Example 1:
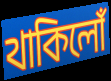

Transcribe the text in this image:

থাকিলোঁ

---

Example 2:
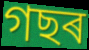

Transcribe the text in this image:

গছৰ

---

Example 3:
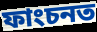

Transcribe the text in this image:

ফাংচনত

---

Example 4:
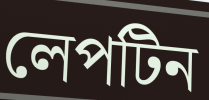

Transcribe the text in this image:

লেপটিন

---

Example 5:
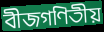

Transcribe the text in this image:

বীজগণিতীয়